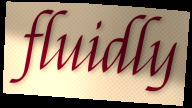
fluidly